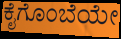
ಕೈಗೊಂಬೆಯೇ